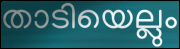
താടിയെല്ലും